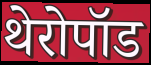
थेरोपॉड